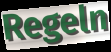
Regeln